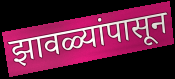
झावळ्यांपासून